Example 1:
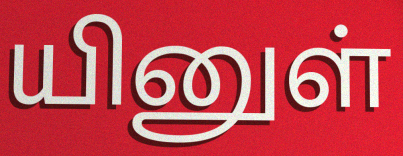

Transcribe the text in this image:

யினுள்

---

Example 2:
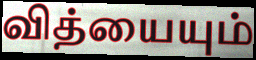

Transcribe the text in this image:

வித்யையும்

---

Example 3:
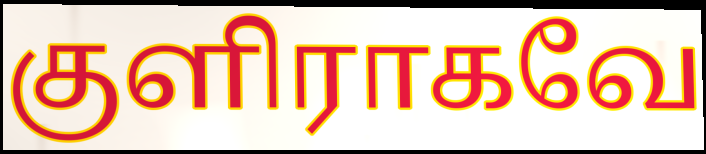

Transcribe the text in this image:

குளிராகவே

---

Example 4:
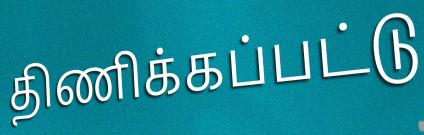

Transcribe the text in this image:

திணிக்கப்பட்டு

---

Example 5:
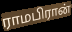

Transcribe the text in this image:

ராமபிரான்